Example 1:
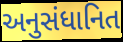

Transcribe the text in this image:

અનુસંધાનિત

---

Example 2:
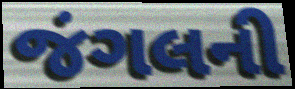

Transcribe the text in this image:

જંગલની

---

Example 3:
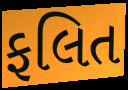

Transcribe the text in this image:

ફલિત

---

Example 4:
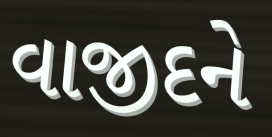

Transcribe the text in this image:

વાજીદને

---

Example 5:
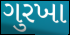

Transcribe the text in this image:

ગુરખા